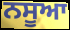
ਨਸੂਆ